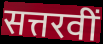
सत्तरवीं